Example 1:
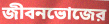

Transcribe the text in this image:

জীবনভোজের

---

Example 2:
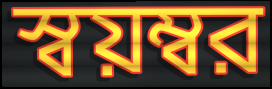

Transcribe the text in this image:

স্বয়ম্বর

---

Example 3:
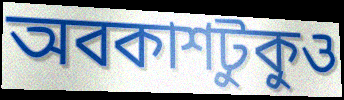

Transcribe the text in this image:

অবকাশটুকুও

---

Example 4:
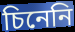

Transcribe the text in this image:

চিনেনি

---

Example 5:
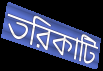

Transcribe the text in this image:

তরিকাটি